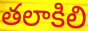
తలాకిలి